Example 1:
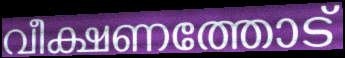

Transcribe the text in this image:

വീക്ഷണത്തോട്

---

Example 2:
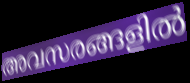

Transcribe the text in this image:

അവസരങ്ങളിൽ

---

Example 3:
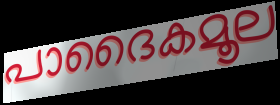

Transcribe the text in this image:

പാദൈകമൂല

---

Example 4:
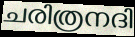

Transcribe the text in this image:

ചരിത്രനദി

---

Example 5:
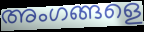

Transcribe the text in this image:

അംഗങ്ങളെ